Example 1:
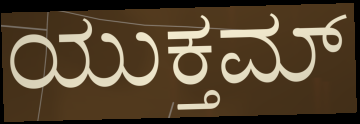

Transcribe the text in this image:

ಯುಕ್ತಮ್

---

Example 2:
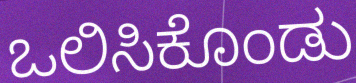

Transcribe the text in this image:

ಒಲಿಸಿಕೊಂಡು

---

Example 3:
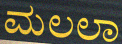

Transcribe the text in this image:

ಮಲಲಾ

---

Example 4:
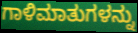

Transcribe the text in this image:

ಗಾಳಿಮಾತುಗಳನ್ನು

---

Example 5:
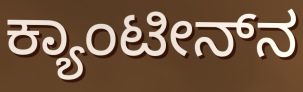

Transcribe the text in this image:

ಕ್ಯಾಂಟೀನ್‌ನ